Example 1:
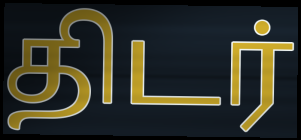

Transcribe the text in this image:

திடர்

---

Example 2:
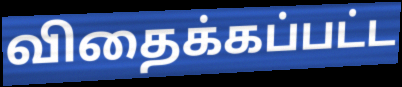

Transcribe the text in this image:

விதைக்கப்பட்ட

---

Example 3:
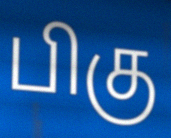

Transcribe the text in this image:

பிகு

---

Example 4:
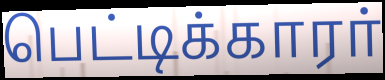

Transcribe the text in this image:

பெட்டிக்காரர்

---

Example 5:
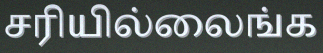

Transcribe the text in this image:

சரியில்லைங்க